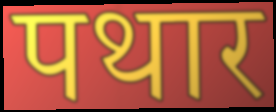
पथार